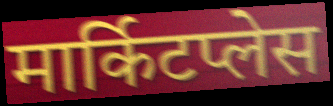
मार्किटप्लेस